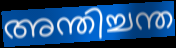
അന്തിച്ചന്ത